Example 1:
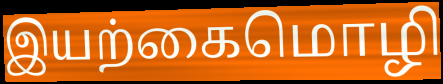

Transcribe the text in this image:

இயற்கைமொழி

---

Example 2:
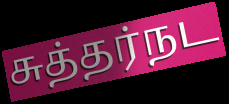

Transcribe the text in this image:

சுத்தர்நட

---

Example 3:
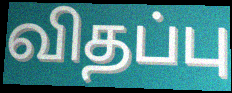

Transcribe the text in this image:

விதப்பு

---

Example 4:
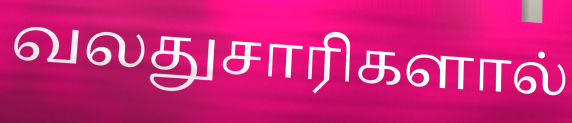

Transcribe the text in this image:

வலதுசாரிகளால்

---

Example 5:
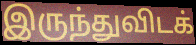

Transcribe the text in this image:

இருந்துவிடக்